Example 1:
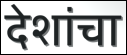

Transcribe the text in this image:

देशांचा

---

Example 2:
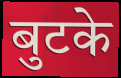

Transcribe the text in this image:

बुटके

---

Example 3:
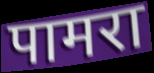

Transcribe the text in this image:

पामरा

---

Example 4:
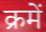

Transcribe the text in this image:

क्रमें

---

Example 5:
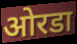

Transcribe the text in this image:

ओरडा